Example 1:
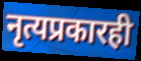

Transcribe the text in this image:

नृत्यप्रकारही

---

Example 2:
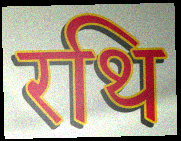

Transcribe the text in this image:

रथि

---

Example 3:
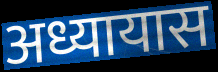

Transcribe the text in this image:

अध्यायास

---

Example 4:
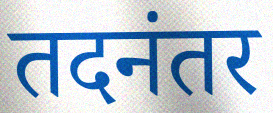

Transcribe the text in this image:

तदनंतर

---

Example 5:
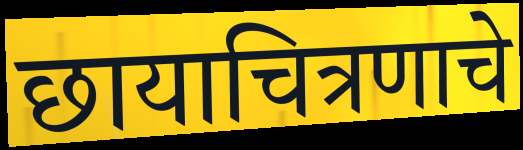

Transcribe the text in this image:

छायाचित्रणाचे